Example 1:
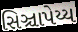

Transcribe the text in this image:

સિઞ્ચાપેય્ય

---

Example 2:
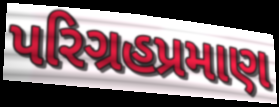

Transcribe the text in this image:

પરિગ્રહપ્રમાણ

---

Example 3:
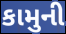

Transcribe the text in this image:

કામુની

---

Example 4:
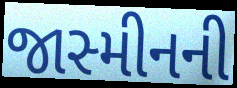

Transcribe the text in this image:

જાસ્મીનની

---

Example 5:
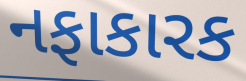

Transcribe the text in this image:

નફાકારક